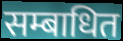
सम्बाधित